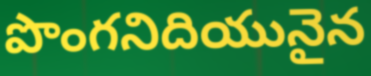
పొంగనిదియునైన